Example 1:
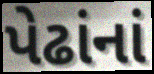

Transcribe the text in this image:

પેઢાંનાં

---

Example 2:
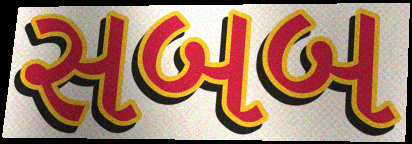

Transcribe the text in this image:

સબબ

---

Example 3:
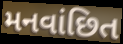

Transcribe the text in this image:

મનવાંછિત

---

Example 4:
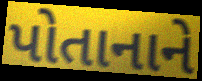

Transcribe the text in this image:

પોતાનાને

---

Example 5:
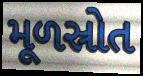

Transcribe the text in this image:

મૂળસ્રોત